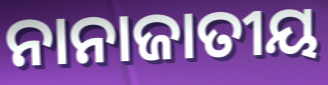
ନାନାଜାତୀୟ